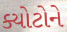
ક્યોટોને